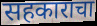
सहकाराचा